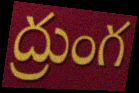
ద్రుంగ